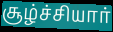
சூழ்ச்சியார்